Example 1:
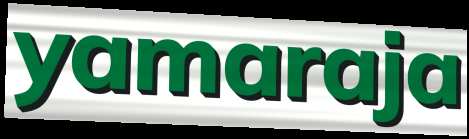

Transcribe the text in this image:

yamaraja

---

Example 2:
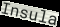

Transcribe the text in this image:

Insula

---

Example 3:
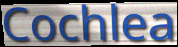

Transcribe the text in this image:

Cochlea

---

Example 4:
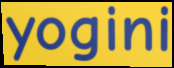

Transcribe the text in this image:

yogini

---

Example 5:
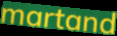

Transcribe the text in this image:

martand